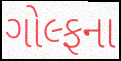
ગોલ્ફના